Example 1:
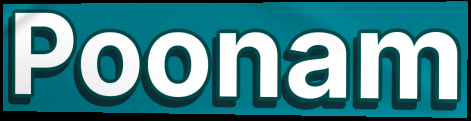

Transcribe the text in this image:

Poonam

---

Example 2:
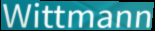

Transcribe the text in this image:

Wittmann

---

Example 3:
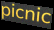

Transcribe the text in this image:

picnic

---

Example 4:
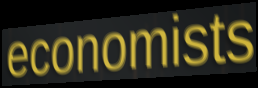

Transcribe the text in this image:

economists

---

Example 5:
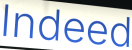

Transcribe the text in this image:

Indeed